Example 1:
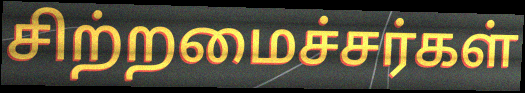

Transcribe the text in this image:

சிற்றமைச்சர்கள்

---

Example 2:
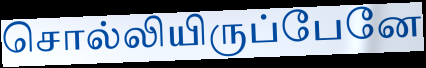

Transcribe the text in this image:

சொல்லியிருப்பேனே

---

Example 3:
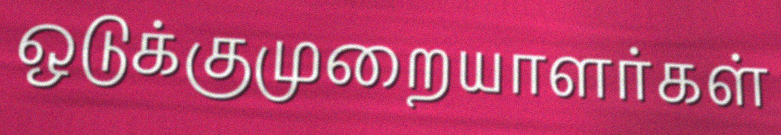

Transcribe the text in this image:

ஒடுக்குமுறையாளர்கள்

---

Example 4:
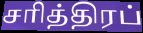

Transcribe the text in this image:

சரித்திரப்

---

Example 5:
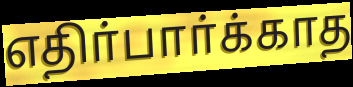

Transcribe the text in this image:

எதிர்பார்க்காத